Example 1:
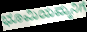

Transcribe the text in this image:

ಭೂಮಿಯಮ್ಮನಿಗೆ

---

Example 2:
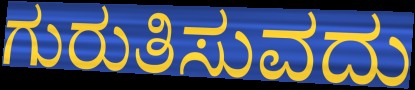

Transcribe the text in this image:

ಗುರುತಿಸುವದು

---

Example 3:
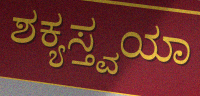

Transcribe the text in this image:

ಶಕ್ಯಸ್ತ್ವಯಾ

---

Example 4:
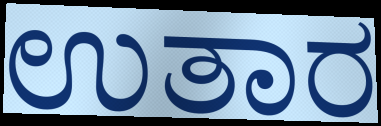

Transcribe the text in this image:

ಉತಾರ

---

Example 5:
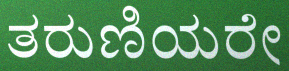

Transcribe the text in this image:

ತರುಣಿಯರೇ